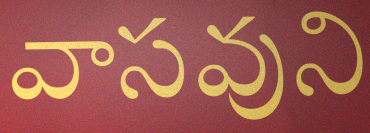
వాసవుని